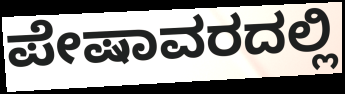
ಪೇಷಾವರದಲ್ಲಿ